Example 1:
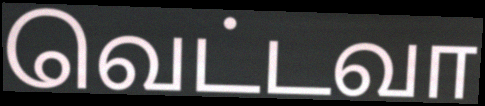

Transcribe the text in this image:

வெட்டவா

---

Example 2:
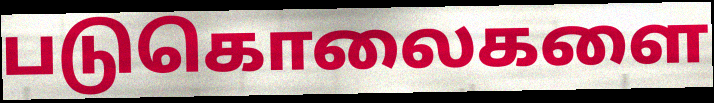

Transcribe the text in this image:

படுகொலைகளை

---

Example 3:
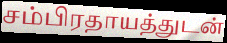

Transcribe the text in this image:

சம்பிரதாயத்துடன்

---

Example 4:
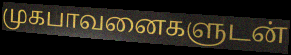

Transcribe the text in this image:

முகபாவனைகளுடன்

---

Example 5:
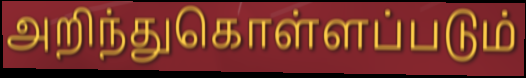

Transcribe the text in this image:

அறிந்துகொள்ளப்படும்